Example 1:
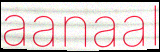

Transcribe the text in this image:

aanaal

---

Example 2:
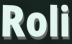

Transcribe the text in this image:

Roli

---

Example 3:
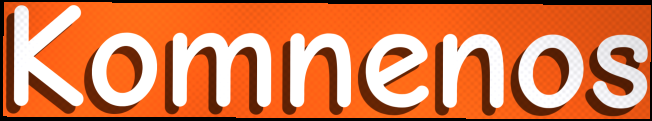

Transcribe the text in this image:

Komnenos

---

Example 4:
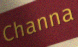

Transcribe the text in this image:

Channa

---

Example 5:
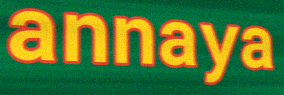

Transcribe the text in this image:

annaya